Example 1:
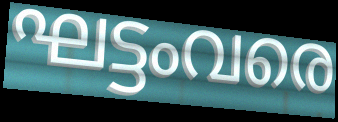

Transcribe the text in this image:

ഘട്ടംവരെ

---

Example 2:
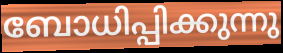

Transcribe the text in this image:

ബോധിപ്പിക്കുന്നു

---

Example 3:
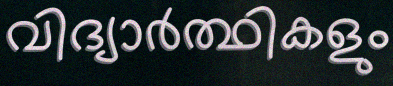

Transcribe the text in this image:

വിദ്യാർത്ഥികളും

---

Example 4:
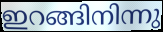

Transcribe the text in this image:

ഇറങ്ങിനിന്നു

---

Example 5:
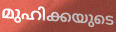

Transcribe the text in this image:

മുഹിക്കയുടെ